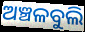
ଅଞ୍ଚଳବୁଲି